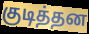
குடித்தன